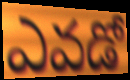
ఎవడో